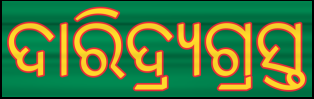
ଦାରିଦ୍ର୍ୟଗ୍ରସ୍ତ